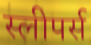
स्लीपर्स